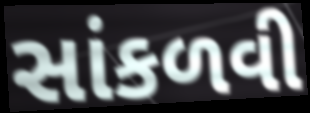
સાંકળવી